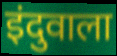
इंदुवाला